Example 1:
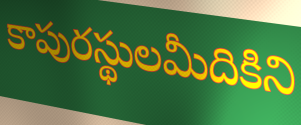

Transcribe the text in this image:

కాపురస్థులమీదికిని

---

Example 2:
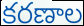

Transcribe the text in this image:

కరణాల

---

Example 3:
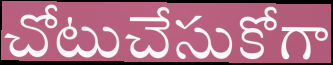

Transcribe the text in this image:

చోటుచేసుకోగా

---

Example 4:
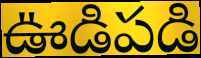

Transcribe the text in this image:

ఊడిపడి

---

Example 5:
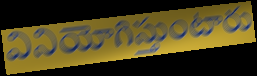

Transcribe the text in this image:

వినియోగిస్తుంటారు